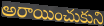
అరాయించుకుని